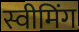
स्वीमिंग